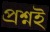
প্ৰশ্নই